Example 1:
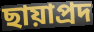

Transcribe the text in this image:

ছায়াপ্রদ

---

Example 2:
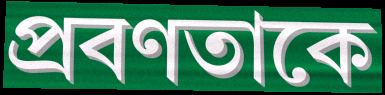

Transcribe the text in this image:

প্রবণতাকে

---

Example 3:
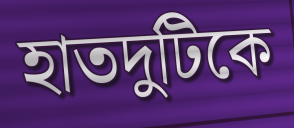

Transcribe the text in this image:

হাতদুটিকে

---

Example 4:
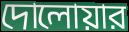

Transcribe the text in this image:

দোলোয়ার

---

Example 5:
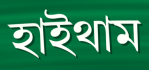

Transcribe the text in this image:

হাইথাম